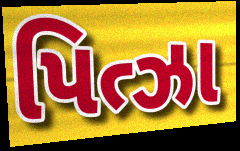
પિત્ઝા